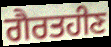
ਗੈਰਤਹੀਣ